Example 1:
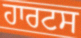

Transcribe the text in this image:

ਹਾਰਟਸ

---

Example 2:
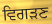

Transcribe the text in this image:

ਵਿਗੜਣ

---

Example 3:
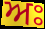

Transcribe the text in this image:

ਅਃ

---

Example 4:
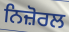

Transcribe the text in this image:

ਨਿਜ਼ੋਰਲ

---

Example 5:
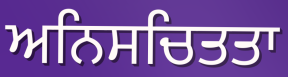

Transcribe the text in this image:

ਅਨਿਸਚਿਤਤਾ